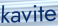
kavite